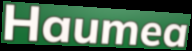
Haumea